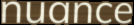
nuance